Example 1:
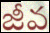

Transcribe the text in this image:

జీవ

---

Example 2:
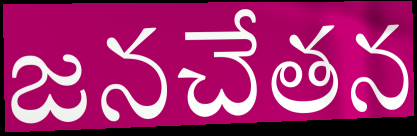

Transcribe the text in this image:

జనచేతన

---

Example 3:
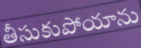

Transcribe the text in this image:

తీసుకుపోయాను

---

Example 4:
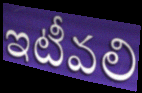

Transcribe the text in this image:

ఇటీవలి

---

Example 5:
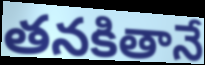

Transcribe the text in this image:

తనకితానే